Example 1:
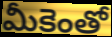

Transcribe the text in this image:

మీకెంతో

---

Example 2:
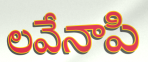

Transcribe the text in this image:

లవేనాపి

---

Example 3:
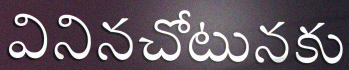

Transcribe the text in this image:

వినినచోటునకు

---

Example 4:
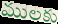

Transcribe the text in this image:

ములకు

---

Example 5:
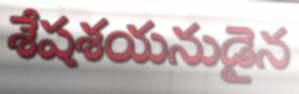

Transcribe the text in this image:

శేషశయనుడైన